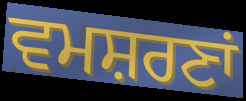
ਵਮਸ਼ਰਣਾਂ